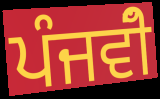
ਪੰਜਵੀਁ